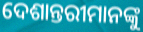
ଦେଶାନ୍ତରୀମାନଙ୍କୁ